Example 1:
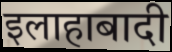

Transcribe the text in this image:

इलाहाबादी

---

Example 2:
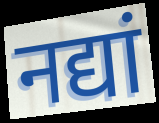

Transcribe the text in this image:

नद्यां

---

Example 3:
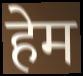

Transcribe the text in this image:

हेम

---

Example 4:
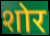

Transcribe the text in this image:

शोर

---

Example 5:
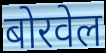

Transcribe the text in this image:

बोरवेल